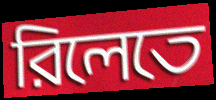
রিলেতে